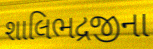
શાલિભદ્રજીના